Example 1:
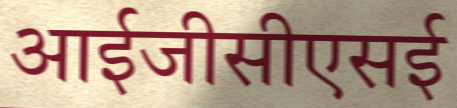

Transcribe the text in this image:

आईजीसीएसई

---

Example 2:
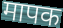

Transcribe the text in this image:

मापक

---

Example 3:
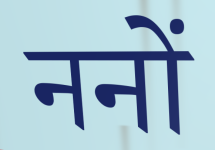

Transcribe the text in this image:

ननों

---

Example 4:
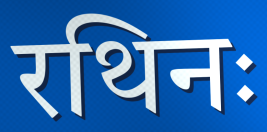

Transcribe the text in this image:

रथिनः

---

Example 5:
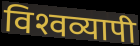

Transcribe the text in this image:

विश्वव्यापी